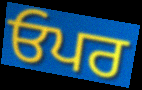
ਓਪਰ